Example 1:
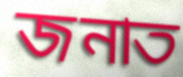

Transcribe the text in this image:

জনাত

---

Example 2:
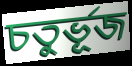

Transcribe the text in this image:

চতুৰ্ভূজ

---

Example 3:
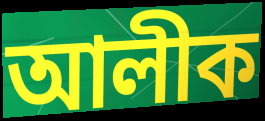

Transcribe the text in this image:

আলীক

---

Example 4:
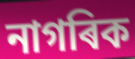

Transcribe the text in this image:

নাগৰিক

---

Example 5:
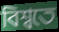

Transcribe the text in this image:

বিশ্বতে